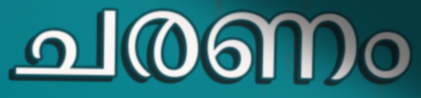
ചരണം